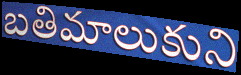
బతిమాలుకుని